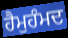
ਹੈਮੁਹੰਮਦ